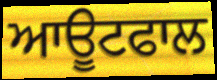
ਆਊਟਫਾਲ